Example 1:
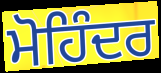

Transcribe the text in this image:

ਮੋਹਿੰਦਰ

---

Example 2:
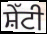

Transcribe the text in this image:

ਸ਼ੇੱਟੀ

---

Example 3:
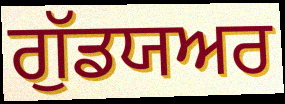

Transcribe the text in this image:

ਗੁੱਡਯਅਰ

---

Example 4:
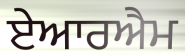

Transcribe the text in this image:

ਏਆਰਐਮ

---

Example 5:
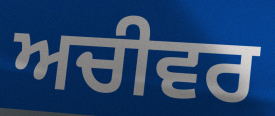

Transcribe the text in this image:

ਅਚੀਵਰ